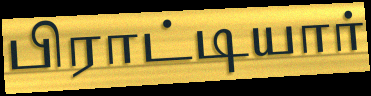
பிராட்டியார்